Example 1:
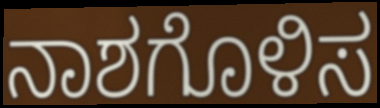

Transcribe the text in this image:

ನಾಶಗೊಳಿಸ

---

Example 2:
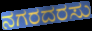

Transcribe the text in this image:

ನಗರದರಸು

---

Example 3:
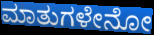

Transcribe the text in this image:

ಮಾತುಗಳೇನೋ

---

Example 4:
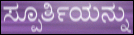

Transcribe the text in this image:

ಸ್ಪೂರ್ತಿಯನ್ನು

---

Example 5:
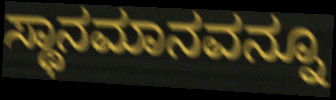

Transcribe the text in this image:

ಸ್ಥಾನಮಾನವನ್ನೂ